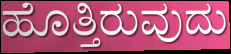
ಹೊತ್ತಿರುವುದು